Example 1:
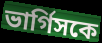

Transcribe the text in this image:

ভার্গিসকে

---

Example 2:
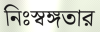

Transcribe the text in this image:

নিঃস্বঙ্গতার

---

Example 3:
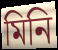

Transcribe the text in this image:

মিনি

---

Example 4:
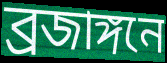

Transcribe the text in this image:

ব্রজাঙ্গনে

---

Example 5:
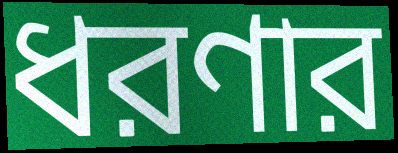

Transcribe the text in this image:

ধরণার